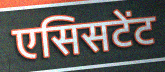
एसिसटेंट